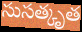
సుసత్కృత